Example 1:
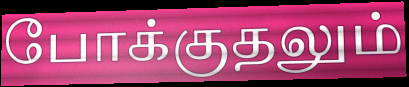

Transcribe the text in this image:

போக்குதலும்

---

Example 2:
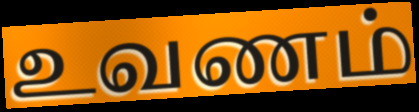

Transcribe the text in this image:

உவணம்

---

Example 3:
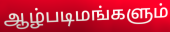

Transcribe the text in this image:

ஆழ்படிமங்களும்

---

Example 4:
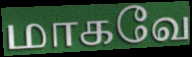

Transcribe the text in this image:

மாகவே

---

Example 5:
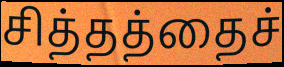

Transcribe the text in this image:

சித்தத்தைச்